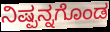
ನಿಷ್ಪನ್ನಗೊಂಡ